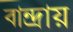
বান্দ্রায়